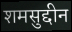
शमसुद्दीन